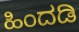
ಹಿಂದಡಿ